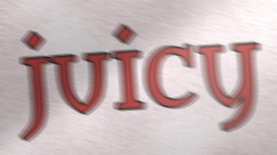
juicy